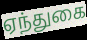
ஏந்துகை